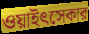
ওয়াইৎসেকার